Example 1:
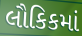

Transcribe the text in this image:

લૌકિકમાં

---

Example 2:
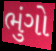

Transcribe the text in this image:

ભુંગો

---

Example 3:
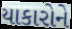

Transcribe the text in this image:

યાકારોને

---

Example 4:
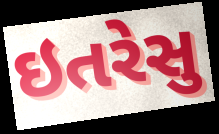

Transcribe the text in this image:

ઇતરેસુ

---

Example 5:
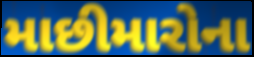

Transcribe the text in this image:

માછીમારોના